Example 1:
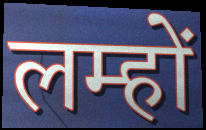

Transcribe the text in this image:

लम्हों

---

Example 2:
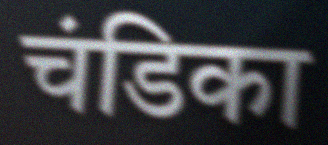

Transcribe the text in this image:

चंडिका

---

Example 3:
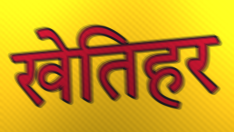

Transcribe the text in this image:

खेतिहर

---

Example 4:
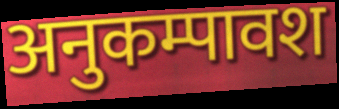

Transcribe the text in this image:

अनुकम्पावश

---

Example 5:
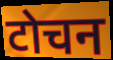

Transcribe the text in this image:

टोचन